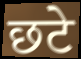
छटे